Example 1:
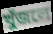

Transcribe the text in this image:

খুঁজলে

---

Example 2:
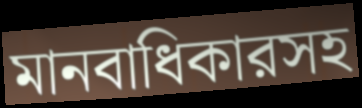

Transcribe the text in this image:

মানবাধিকারসহ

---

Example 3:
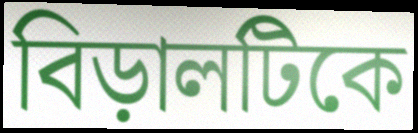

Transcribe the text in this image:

বিড়ালটিকে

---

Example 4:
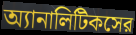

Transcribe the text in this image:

অ্যানালিটিকসের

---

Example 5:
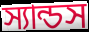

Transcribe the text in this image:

স্যান্ডস